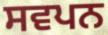
ਸਵਪਨ